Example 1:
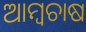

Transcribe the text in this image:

ଆମ୍ୱଚାଷ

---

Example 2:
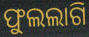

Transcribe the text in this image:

ଫୁଲଲାଗି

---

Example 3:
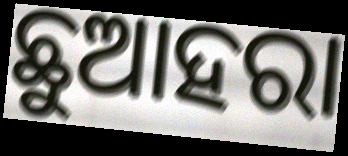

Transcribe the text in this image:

ଛୁଆହରା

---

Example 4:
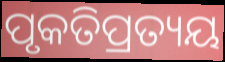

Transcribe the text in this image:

ପୃକତିପ୍ରତ୍ୟୟ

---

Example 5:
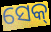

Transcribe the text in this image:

ସେକ୍